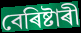
বেৰিষ্টাৰী